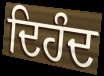
ਦਿਹੰਦ